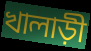
খালাড়ী